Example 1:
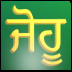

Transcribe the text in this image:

ਜੋਹੂ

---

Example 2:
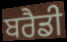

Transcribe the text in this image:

ਬਰੈਡੀ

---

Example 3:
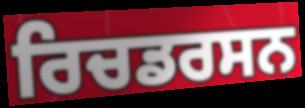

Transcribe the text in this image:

ਰਿਚਡਰਸਨ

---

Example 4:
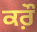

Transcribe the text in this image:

ਕਰ਼ੌ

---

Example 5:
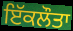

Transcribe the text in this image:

ਇੱਕਲੌਤਾ